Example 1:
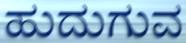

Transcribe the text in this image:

ಹುದುಗುವ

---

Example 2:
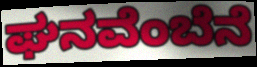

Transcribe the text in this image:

ಘನವೆಂಬೆನೆ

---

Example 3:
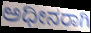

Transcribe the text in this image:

ಅಧೀನರಾಗಿ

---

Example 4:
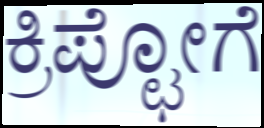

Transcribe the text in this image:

ಕ್ರಿಪ್ಟೋಗೆ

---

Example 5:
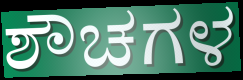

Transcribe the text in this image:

ಶೌಚಗಳ